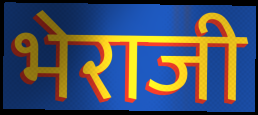
भेराजी